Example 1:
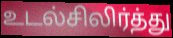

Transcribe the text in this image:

உடல்சிலிர்த்து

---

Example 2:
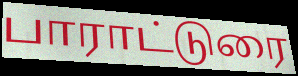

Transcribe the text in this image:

பாராட்டுரை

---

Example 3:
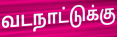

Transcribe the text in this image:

வடநாட்டுக்கு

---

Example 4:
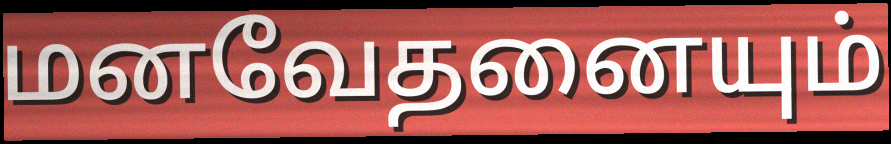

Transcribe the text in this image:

மனவேதனையும்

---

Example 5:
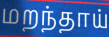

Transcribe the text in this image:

மறந்தாய்